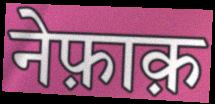
नेफ़ाक़